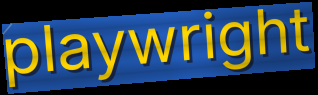
playwright